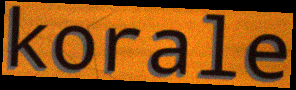
korale